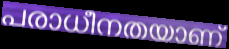
പരാധീനതയാണ്